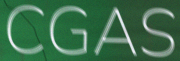
CGAS